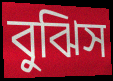
বুঝিস